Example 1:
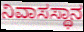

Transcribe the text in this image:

ನಿವಾಸಸ್ಥಾನ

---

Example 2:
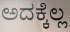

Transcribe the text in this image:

ಅದಕ್ಕೆಲ್ಲ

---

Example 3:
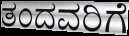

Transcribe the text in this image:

ತಂದವರಿಗೆ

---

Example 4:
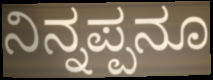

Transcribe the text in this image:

ನಿನ್ನಪ್ಪನೂ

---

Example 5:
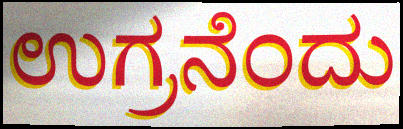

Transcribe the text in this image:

ಉಗ್ರನೆಂದು